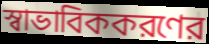
স্বাভাবিককরণের